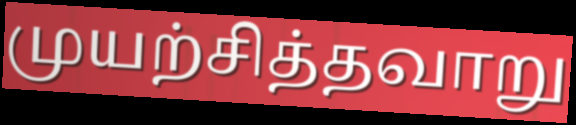
முயற்சித்தவாறு